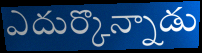
ఎదుర్కొన్నాడు